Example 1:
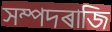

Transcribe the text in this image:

সম্পদৰাজি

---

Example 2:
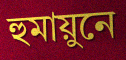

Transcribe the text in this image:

হুমায়ুনে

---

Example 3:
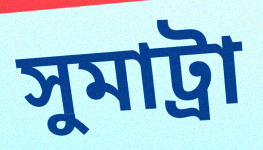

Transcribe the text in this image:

সুমাট্ৰা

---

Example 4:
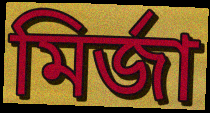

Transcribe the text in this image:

মিৰ্জা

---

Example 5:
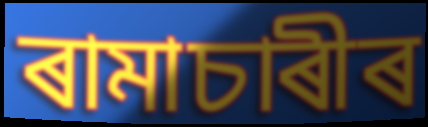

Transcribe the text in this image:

ৰামাচাৰীৰ